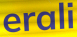
erali